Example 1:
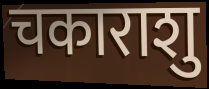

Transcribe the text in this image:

चकाराशु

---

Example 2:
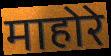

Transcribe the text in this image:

माहोरे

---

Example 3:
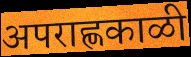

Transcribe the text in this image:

अपराह्णकाळी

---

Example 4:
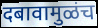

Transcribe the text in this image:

दबावामुळंच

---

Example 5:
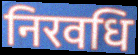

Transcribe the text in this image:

निरवधि